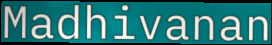
Madhivanan